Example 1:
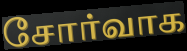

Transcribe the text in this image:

சோர்வாக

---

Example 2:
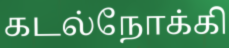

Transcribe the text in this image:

கடல்நோக்கி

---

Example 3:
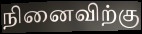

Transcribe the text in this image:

நினைவிற்கு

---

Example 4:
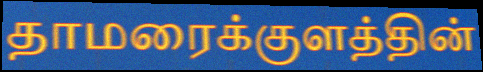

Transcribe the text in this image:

தாமரைக்குளத்தின்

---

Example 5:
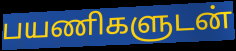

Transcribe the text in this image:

பயணிகளுடன்